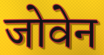
जोवेन